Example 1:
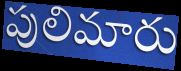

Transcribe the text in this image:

పులిమారు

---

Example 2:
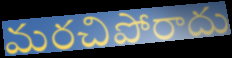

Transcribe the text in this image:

మరచిపోరాదు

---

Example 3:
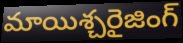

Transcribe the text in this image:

మాయిశ్చరైజింగ్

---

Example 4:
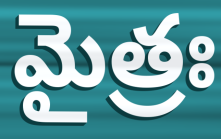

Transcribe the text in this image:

మైత్రః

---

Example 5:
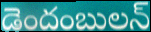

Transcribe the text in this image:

డెందంబులన్